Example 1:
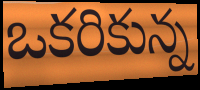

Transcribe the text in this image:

ఒకరికున్న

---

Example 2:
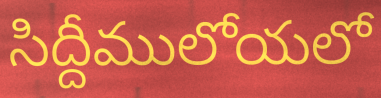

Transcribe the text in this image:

సిద్దీములోయలో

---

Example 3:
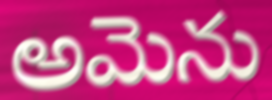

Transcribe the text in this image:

అమెను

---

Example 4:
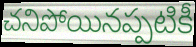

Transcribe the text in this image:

చనిపోయినప్పటికీ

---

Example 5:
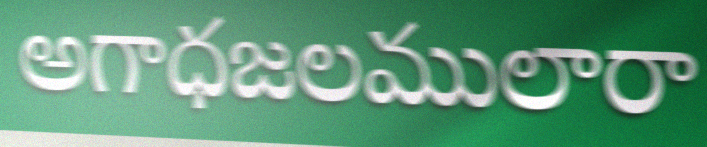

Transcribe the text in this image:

అగాధజలములారా